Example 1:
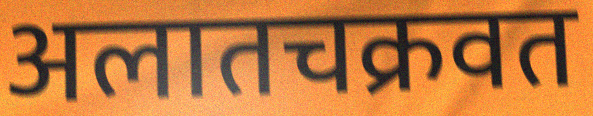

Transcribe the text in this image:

अलातचक्रवत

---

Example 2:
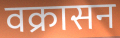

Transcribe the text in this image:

वक्रासन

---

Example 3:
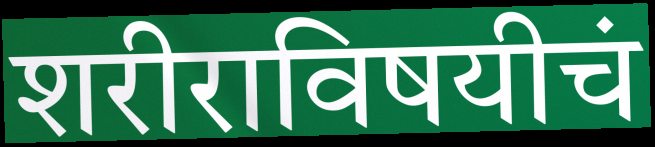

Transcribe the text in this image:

शरीराविषयीचं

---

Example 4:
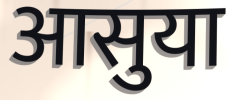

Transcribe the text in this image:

आसुया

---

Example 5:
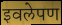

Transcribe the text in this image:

इवलेपण